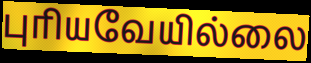
புரியவேயில்லை